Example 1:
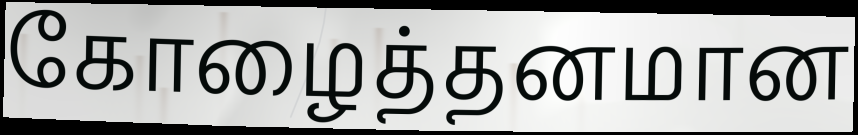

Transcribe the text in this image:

கோழைத்தனமான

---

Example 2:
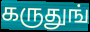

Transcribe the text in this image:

கருதுங்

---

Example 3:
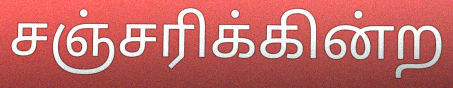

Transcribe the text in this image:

சஞ்சரிக்கின்ற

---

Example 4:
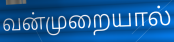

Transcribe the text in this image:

வன்முறையால்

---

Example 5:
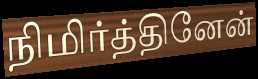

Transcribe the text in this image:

நிமிர்த்தினேன்